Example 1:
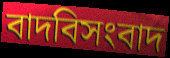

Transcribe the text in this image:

বাদবিসংবাদ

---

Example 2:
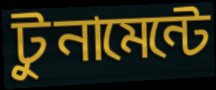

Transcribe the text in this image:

টুনামেন্টে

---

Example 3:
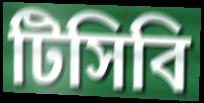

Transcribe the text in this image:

টিসিবি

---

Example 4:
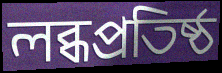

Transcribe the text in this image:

লব্ধপ্রতিষ্ঠ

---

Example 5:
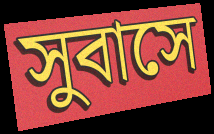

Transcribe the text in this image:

সুবাসে